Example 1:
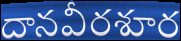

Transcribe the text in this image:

దానవీరశూర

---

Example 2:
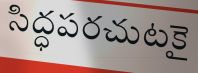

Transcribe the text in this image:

సిద్ధపరచుటకై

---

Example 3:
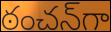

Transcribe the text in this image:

ఠంచన్‌గా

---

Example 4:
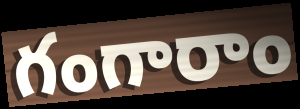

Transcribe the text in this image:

గంగారాం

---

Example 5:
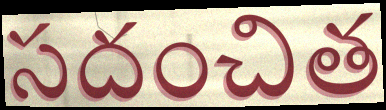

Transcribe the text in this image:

సదంచిత